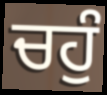
ਚਹੁੰ